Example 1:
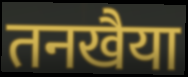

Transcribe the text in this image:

तनखैया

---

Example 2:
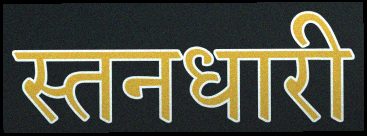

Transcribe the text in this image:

स्तनधारी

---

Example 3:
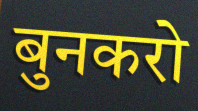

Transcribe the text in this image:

बुनकरो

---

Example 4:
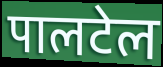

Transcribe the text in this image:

पालटेल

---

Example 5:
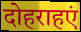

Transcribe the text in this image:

दोहराहएं